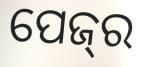
ପେଜ୍‌ର